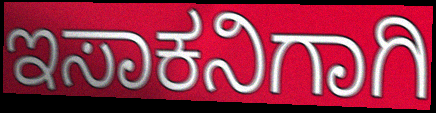
ಇಸಾಕನಿಗಾಗಿ